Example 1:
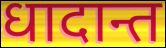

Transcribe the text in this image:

धादान्त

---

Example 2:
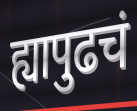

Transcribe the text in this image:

ह्यापुढचं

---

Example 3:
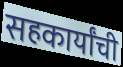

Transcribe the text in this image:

सहकार्यांची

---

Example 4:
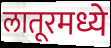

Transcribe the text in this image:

लातूरमध्ये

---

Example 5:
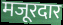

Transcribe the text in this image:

मजूरदार